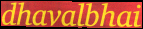
dhavalbhai